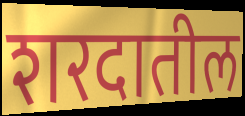
शरदातील